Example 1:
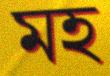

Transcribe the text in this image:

মহ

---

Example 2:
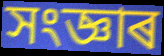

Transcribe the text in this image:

সংজ্ঞাৰ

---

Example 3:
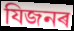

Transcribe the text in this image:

যিজনৰ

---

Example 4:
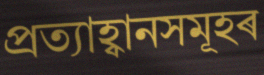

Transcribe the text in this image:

প্ৰত্যাহ্বানসমূহৰ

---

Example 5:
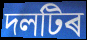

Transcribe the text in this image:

দলটিৰ